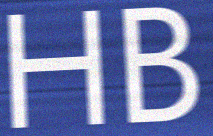
HB